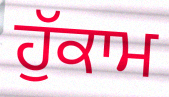
ਹੁੱਕਾਮ